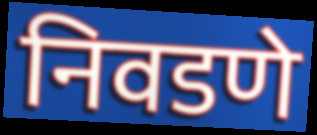
निवडणे